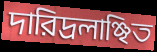
দারিদ্রলাঞ্ছিত